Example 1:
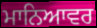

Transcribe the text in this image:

ਮਾਨਿਆਵਰ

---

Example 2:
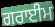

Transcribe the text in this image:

ਗਰਾਈਮ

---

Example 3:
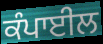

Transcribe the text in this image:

ਕੰਪਾਈਲ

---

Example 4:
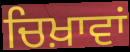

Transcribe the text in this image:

ਚਿਖ਼ਾਵਾਂ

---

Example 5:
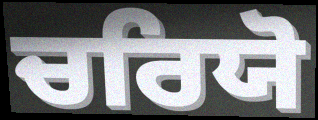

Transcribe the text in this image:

ਚਰਿਯੋ